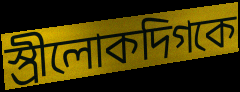
স্ত্রীলোকদিগকে